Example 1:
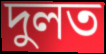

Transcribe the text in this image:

দুলত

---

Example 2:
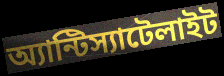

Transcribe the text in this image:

অ্যান্টিস্যাটেলাইট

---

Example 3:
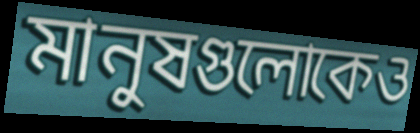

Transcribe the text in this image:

মানুষগুলোকেও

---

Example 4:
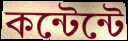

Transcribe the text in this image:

কন্টেন্টে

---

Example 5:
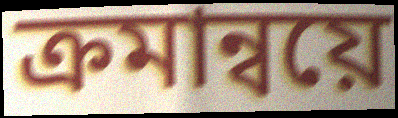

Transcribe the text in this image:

ক্রমান্বয়ে